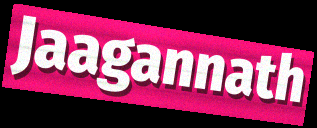
Jaagannath